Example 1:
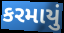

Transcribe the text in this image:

કરમાયું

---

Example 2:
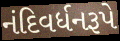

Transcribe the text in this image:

નંદિવર્ધનરૂપે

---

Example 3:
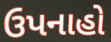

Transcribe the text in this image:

ઉપનાહો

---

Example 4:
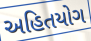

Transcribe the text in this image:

અહિતયોગ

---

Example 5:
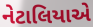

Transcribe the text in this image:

નેટાલિયાએ